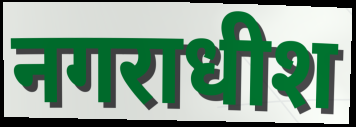
नगराधीश